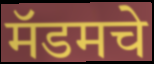
मॅडमचे